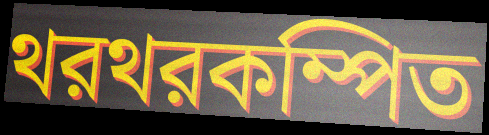
থরথরকম্পিত